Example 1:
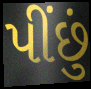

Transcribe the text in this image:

પીંછું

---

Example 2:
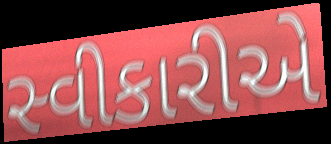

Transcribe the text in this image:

સ્વીકારીએ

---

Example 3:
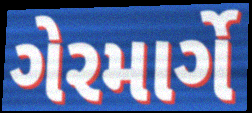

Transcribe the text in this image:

ગેરમાર્ગે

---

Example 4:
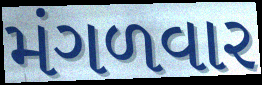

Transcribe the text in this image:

મંગળવાર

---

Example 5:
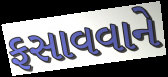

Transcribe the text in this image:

ફસાવવાને